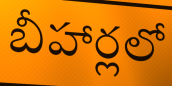
బీహార్లలో